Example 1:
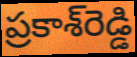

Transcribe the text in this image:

ప్రకాశ్‌రెడ్డి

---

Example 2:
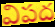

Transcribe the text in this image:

విపద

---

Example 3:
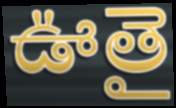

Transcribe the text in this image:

ఊతై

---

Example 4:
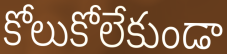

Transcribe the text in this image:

కోలుకోలేకుండా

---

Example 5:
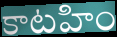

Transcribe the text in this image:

కాటహిం